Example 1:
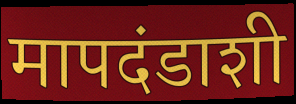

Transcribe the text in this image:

मापदंडाशी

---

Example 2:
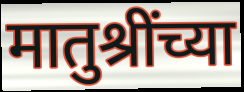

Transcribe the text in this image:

मातुश्रींच्या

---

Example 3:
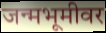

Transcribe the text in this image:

जन्मभूमीवर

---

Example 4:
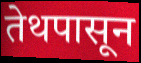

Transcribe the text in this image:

तेथपासून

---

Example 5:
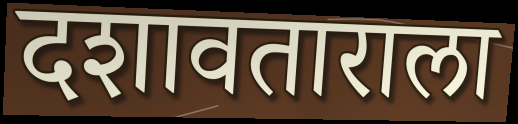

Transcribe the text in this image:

दशावताराला